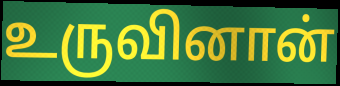
உருவினான்